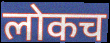
लोकच